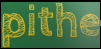
pithe